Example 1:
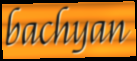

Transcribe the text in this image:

bachyan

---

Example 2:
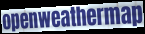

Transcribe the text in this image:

openweathermap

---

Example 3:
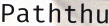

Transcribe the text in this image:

Paththu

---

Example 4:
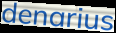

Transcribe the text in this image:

denarius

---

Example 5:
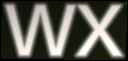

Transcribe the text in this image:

wx